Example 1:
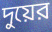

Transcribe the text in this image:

দুয়ের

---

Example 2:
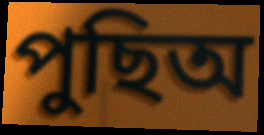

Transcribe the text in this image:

পুছিঅ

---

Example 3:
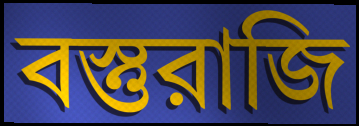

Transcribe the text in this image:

বস্তুরাজি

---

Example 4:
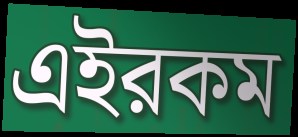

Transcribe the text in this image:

এইরকম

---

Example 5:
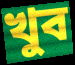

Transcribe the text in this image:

খুব